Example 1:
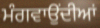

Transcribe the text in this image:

ਮੰਗਵਾਉਂਦੀਆਂ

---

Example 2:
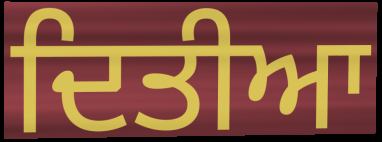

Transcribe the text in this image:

ਦਿਤੀਆ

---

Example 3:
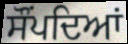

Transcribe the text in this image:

ਸੌਂਪਦਿਆਂ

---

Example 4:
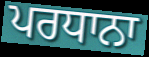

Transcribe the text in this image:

ਪਰਧਾਨਾ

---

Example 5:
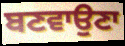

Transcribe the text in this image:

ਬਣਵਾਉਣਾ